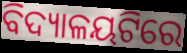
ବିଦ୍ୟାଳୟଟିରେ